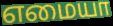
எமையா